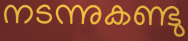
നടന്നുകണ്ടു